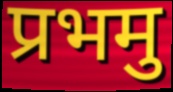
प्रभमु